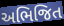
અભિજિત